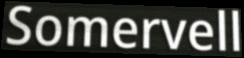
Somervell